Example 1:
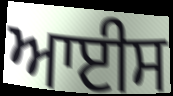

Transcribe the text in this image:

ਆਈਸ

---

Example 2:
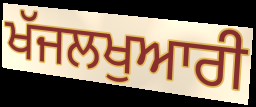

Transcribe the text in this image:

ਖੱਜਲਖੁਆਰੀ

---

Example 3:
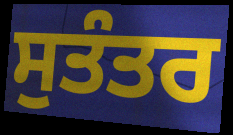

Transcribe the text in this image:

ਸੁਤੰਤਰ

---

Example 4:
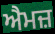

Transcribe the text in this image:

ਐਮਜ਼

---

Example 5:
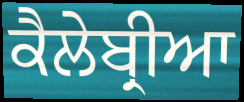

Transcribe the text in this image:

ਕੈਲੇਬ੍ਰੀਆ